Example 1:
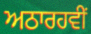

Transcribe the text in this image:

ਅਠਾਰਹਵੀਂ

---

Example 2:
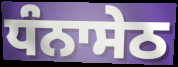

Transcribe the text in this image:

ਧੰਨਾਸੇਠ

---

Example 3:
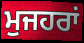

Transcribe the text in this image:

ਮੁਜਹਰਾਂ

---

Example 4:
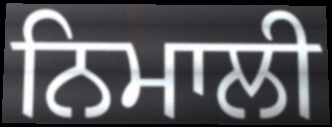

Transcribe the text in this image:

ਨਿਮਾਲੀ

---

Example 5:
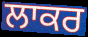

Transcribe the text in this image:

ਲਾਕਰ